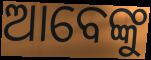
ଆବେଙ୍କୁ